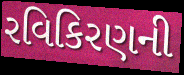
રવિકિરણની